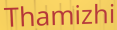
Thamizhi